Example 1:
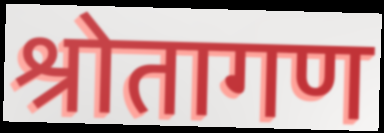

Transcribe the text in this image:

श्रोतागण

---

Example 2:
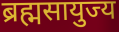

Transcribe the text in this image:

ब्रह्मसायुज्य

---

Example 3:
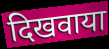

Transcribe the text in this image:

दिखवाया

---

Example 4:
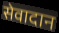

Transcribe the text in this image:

सेवादान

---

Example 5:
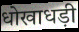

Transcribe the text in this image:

धोखाधड़ी